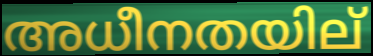
അധീനതയില്